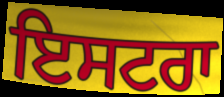
ਇਸਟਰਾ